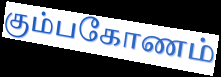
கும்பகோணம்